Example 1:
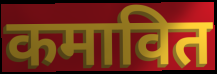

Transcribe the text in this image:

कमावित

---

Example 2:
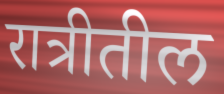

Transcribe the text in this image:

रात्रीतील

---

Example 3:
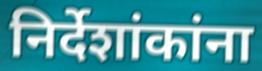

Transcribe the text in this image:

निर्देशांकांना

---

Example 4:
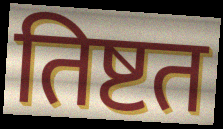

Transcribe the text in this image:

तिष्टत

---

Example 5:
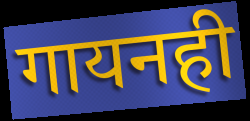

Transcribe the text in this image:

गायनही